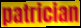
patrician